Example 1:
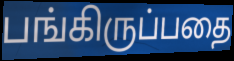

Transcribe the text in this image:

பங்கிருப்பதை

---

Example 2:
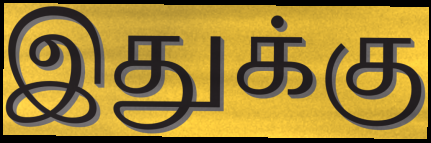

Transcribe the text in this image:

இதுக்கு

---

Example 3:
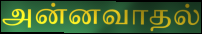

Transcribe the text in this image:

அன்னவாதல்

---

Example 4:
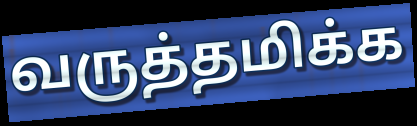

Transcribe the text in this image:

வருத்தமிக்க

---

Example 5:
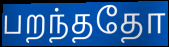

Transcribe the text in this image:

பறந்ததோ